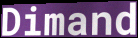
Dimand